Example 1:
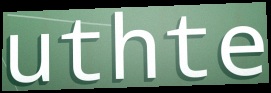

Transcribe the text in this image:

uthte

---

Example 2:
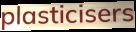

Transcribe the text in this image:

plasticisers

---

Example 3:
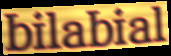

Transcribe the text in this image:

bilabial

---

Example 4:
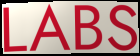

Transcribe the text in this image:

LABS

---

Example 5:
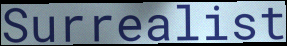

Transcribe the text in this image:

Surrealist